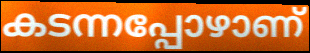
കടന്നപ്പോഴാണ്